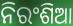
ନିରଂଶିଆ